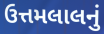
ઉત્તમલાલનું